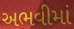
અભવીમાં